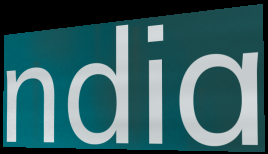
ndia